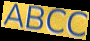
ABCC